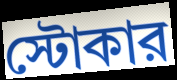
স্টোকার